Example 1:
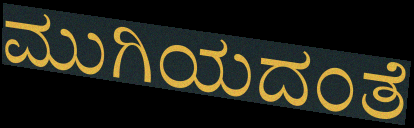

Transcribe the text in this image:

ಮುಗಿಯದಂತೆ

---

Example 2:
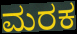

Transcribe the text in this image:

ಮರಕ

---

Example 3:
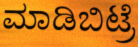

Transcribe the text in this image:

ಮಾಡಿಬಿಟ್ರೆ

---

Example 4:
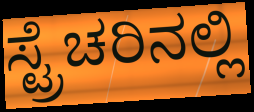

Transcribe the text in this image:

ಸ್ಟ್ರೆಚರಿನಲ್ಲಿ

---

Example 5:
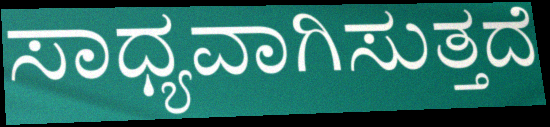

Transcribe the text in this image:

ಸಾಧ್ಯವಾಗಿಸುತ್ತದೆ